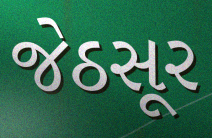
જેઠસૂર